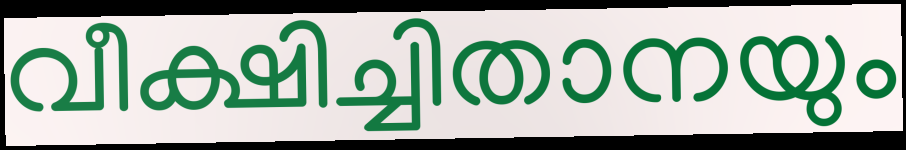
വീക്ഷിച്ചിതാനയും